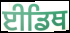
ਈਡਿਥ